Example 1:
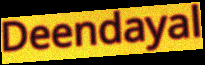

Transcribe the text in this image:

Deendayal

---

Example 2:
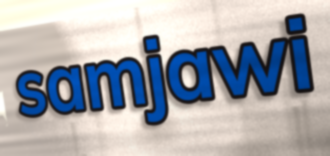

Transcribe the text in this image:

samjawi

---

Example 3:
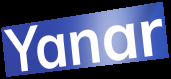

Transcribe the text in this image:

Yanar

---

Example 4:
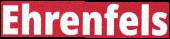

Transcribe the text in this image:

Ehrenfels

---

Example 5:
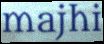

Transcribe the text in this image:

majhi